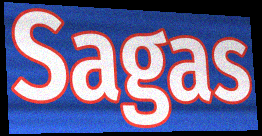
Sagas